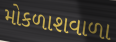
મોકળાશવાળા